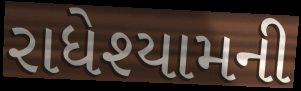
રાધેશ્યામની